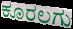
ಕೂರಲಗು